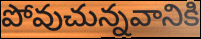
పోవుచున్నవానికి